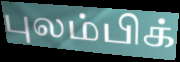
புலம்பிக்